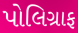
પોલિગ્રાફ